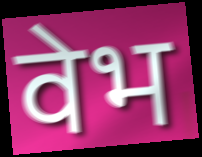
वेभ